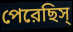
পেরেছিস্